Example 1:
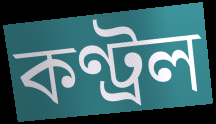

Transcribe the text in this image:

কণ্ট্ৰল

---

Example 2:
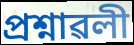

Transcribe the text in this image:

প্ৰশ্নাৱলী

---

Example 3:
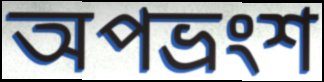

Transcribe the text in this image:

অপভ্ৰংশ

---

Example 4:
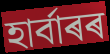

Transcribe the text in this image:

হাৰ্বাৰৰ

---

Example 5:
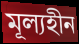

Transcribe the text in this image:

মূল্যহীন